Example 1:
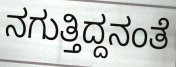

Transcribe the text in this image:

ನಗುತ್ತಿದ್ದನಂತೆ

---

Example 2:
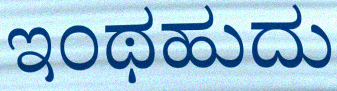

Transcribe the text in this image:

ಇಂಥಹುದು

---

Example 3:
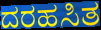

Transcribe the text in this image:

ದರಹಸಿತ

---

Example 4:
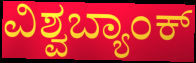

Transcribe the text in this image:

ವಿಶ್ವಬ್ಯಾಂಕ್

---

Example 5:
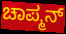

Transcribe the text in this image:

ಚಾಪ್ಮನ್